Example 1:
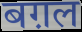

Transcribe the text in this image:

बग़ल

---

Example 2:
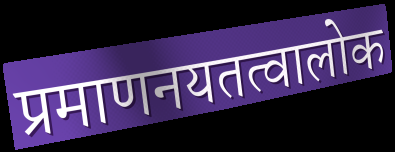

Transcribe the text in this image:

प्रमाणनयतत्वालोक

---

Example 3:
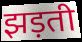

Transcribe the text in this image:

झड़ती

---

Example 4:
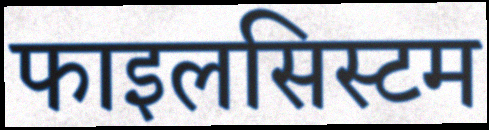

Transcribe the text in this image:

फाइलसिस्टम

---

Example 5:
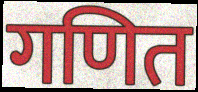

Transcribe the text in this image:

गणित